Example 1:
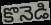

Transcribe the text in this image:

కొనెడి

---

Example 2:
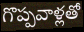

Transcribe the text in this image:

గొప్పవాళ్లతో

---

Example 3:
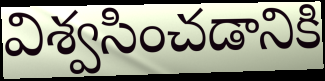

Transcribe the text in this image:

విశ్వసించడానికి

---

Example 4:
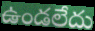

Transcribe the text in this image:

ఉండలేదు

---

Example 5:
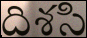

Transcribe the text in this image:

దిశసి